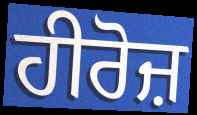
ਹੀਰੋਜ਼